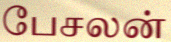
பேசலன்